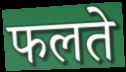
फलते